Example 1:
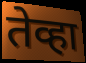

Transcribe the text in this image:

तेव्हा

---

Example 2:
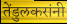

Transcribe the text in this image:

तेंडुलकरांनी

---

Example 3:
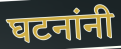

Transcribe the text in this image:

घटनांनी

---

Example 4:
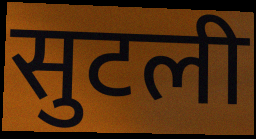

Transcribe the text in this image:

सुटली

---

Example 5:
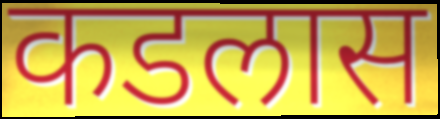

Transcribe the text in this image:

कडलास